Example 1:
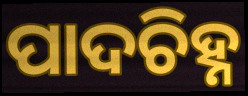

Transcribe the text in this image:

ପାଦଚିହ୍ନ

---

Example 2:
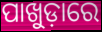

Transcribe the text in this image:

ପାଖୁଡ଼ାରେ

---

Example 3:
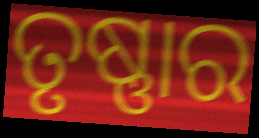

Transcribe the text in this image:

ତୃଷ୍ଣାର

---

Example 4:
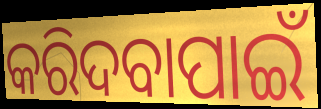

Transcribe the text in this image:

କରିଦବାପାଇଁ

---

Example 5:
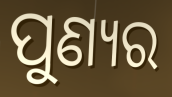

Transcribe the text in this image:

ପୁଣ୍ୟର